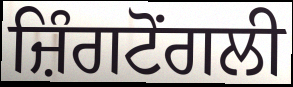
ਜ਼ਿੰਗਟੋਂਗਲੀ